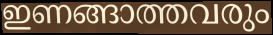
ഇണങ്ങാത്തവരും